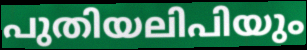
പുതിയലിപിയും